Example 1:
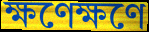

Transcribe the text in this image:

ক্ষণেক্ষণে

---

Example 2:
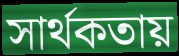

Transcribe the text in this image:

সার্থকতায়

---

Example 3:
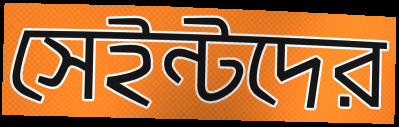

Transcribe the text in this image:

সেইন্টদের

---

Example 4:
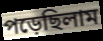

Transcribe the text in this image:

পড়েছিলাম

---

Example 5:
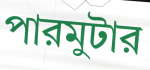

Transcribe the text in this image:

পারমুটার